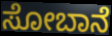
ಸೋಬಾನೆ